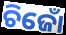
ଚିଜୋଁ